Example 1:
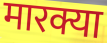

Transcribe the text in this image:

मारक्या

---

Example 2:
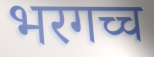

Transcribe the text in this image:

भरगच्च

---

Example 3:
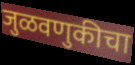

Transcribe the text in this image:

जुळवणुकीचा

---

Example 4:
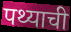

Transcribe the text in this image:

पथ्याची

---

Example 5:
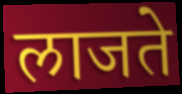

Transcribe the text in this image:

लाजते